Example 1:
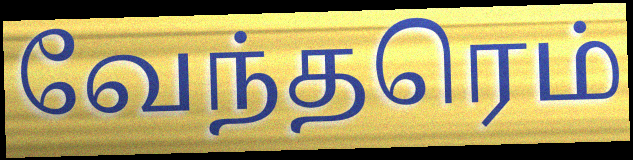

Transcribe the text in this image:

வேந்தரெம்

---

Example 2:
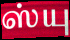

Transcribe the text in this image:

ஸ்யு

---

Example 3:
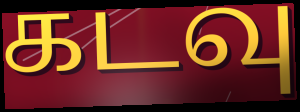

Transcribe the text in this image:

கடவு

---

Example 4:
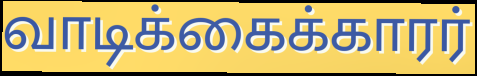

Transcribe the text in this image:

வாடிக்கைக்காரர்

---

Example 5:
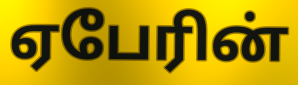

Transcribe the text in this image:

ஏபேரின்